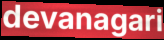
devanagari